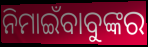
ନିମାଇଁବାବୁଙ୍କର